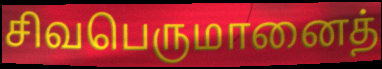
சிவபெருமானைத்